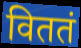
विततं